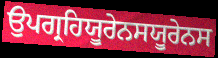
ਉਪਗ੍ਰਹਿਯੂਰੇਨਸਯੂਰੇਨਸ